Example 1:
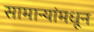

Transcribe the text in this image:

सामान्यांमधून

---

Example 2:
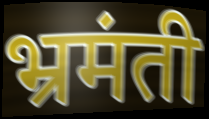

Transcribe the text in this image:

भ्रमंती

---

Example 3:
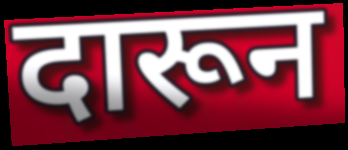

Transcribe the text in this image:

दारून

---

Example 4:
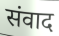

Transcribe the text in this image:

संवाद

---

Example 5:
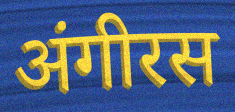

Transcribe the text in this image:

अंगीरस